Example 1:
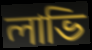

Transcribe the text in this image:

লাভি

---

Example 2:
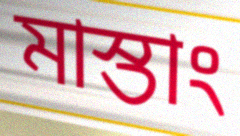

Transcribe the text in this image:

মাস্তাং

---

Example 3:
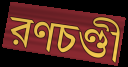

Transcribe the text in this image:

রণচণ্ডী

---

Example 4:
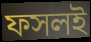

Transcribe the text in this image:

ফসলই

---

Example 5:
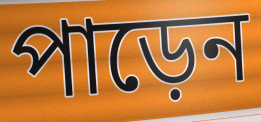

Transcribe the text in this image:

পাড়েন